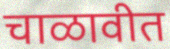
चाळावीत